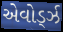
એવોર્ડ્ઝ